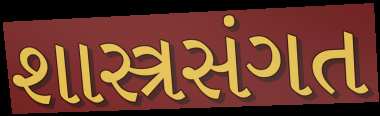
શાસ્ત્રસંગત